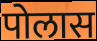
पोलास